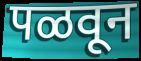
पळवून